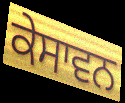
ਕੇਸਾਵਨ